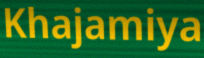
Khajamiya